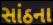
સાંઠના